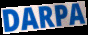
DARPA